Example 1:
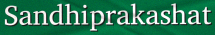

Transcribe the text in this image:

Sandhiprakashat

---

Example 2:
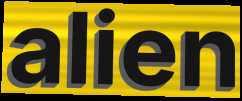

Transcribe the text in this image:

alien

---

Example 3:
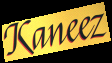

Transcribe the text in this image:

Kaneez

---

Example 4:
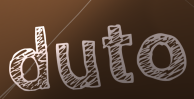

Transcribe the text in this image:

duto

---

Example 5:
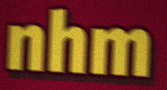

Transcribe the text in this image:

nhm